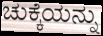
ಚುಕ್ಕೆಯನ್ನು